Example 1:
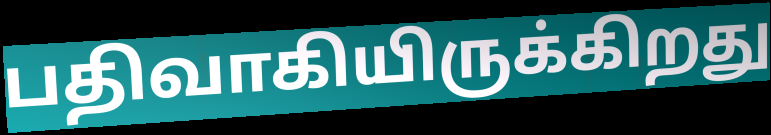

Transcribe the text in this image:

பதிவாகியிருக்கிறது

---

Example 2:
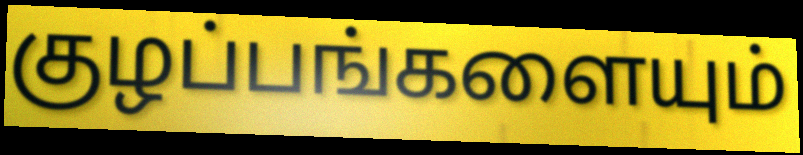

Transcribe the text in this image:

குழப்பங்களையும்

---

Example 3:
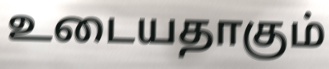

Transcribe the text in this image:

உடையதாகும்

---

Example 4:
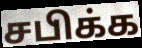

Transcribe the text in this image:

சபிக்க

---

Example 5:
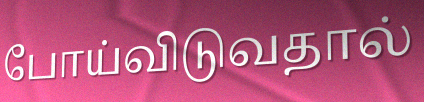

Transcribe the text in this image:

போய்விடுவதால்